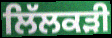
ਲਿੱਲਕੜੀ